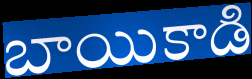
బాయికాడి